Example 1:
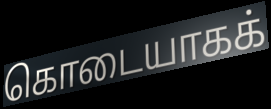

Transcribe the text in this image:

கொடையாகக்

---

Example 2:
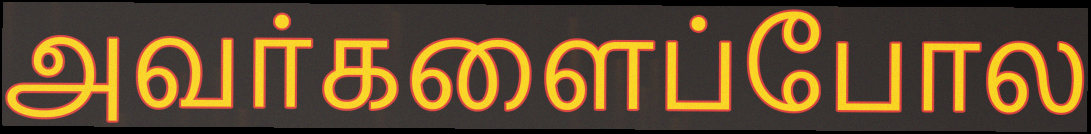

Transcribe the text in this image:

அவர்களைப்போல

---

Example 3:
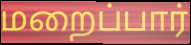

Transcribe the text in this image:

மறைப்பார்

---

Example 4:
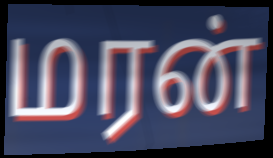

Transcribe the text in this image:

மரன்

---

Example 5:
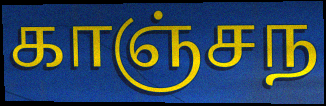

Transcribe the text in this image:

காஞ்சந